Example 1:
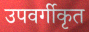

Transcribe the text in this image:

उपवर्गीकृत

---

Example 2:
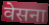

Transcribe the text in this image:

वेसना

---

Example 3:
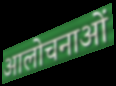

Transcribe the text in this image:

आलोचनाओं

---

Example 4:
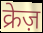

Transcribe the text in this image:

क्रेज़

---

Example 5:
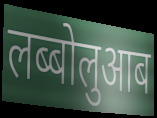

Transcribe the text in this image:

लब्बोलुआब